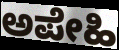
ಅಪೇಹಿ